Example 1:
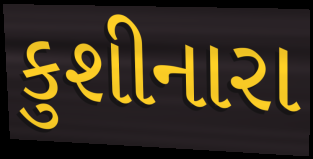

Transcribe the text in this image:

કુશીનારા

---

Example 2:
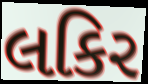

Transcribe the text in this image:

લકિર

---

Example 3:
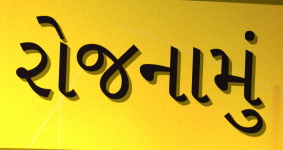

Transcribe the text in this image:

રોજનામું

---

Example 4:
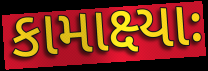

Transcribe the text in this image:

કામાક્ષ્યાઃ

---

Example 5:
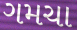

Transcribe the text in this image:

ગમચા